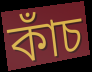
কাঁচ